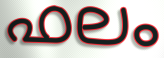
ഫലം